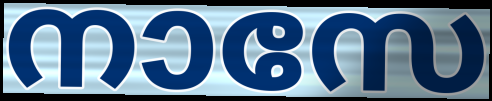
നാസേ